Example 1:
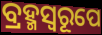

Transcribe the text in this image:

ବ୍ରହ୍ମସ୍ୱରୂପେ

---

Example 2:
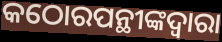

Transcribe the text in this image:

କଠୋରପନ୍ଥୀଙ୍କଦ୍ୱାରା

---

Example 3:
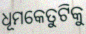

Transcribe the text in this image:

ଧୂମକେତୁଟିକୁ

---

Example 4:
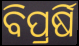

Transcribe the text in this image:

ବିପ୍ରର୍ଷି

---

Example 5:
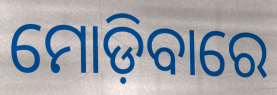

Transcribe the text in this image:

ମୋଡ଼ିବାରେ